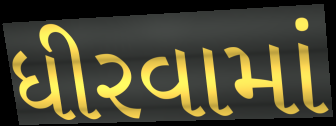
ધીરવામાં